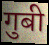
गुबी